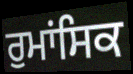
ਰੁਮਾਂਸਿਕ